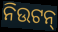
ନିଉଟନ୍